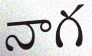
నాగ